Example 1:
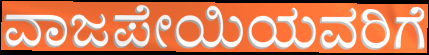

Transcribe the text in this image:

ವಾಜಪೇಯಿಯವರಿಗೆ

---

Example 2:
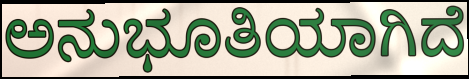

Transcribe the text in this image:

ಅನುಭೂತಿಯಾಗಿದೆ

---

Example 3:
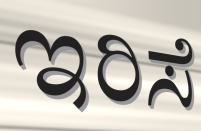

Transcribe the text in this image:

ಇರಿಸೆ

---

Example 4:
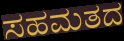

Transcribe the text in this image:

ಸಹಮತದ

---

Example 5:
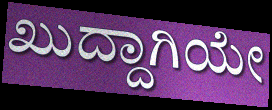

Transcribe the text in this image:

ಖುದ್ದಾಗಿಯೇ